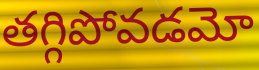
తగ్గిపోవడమో